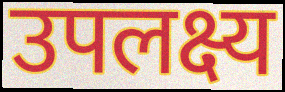
उपलक्ष्य